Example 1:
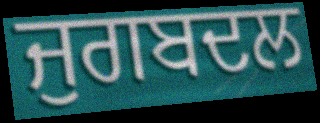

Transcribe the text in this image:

ਜੁਗਬਦਲ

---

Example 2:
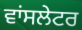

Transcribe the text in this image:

ਵਾਂਸਲੇਟਰ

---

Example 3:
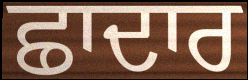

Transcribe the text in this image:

ਛਾਦਾਰ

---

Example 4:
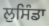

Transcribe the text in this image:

ਲੁਸਿੰਡਾ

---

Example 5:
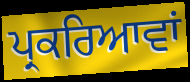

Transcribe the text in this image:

ਪ੍ਰਕਰਿਆਵਾਂ